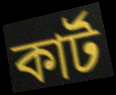
কাৰ্ট